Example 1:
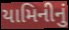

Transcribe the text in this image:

યામિનીનું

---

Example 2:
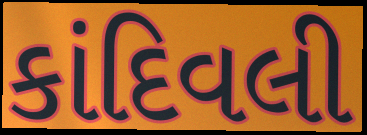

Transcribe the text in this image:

કાંદિવલી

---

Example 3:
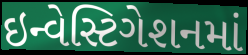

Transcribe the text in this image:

ઇન્વેસ્ટિગેશનમાં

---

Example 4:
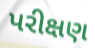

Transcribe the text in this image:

પરીક્ષણ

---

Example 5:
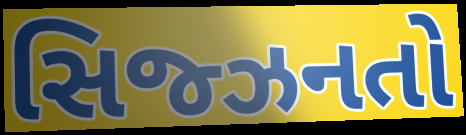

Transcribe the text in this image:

સિજ્ઝનતો